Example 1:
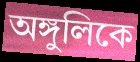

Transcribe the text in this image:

অঙ্গুলিকে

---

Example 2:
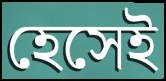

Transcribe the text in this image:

হেসেই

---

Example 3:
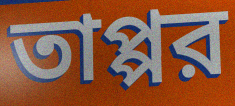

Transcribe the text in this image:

তাপ্পর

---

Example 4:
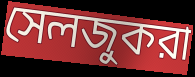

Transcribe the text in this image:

সেলজুকরা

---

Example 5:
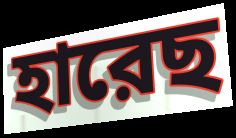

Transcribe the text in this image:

হারেছ